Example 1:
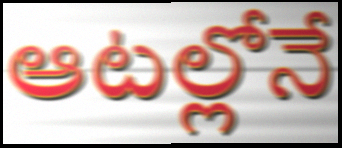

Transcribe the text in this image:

ఆటల్లోనే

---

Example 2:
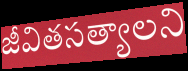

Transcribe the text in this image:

జీవితసత్యాలని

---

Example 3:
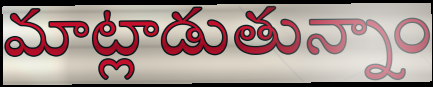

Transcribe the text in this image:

మాట్లాడుతున్నాం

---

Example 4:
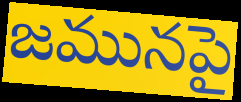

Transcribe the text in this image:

జమునపై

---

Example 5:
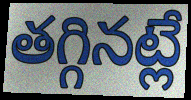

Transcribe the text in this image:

తగ్గినట్లే